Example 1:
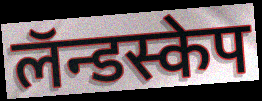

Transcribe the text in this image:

लॅन्डस्केप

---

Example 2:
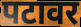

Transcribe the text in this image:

पटावर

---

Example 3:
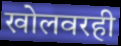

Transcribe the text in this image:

खोलवरही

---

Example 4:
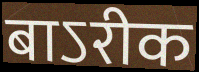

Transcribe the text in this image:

बाऽरीक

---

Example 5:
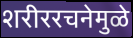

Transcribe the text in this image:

शरीररचनेमुळे